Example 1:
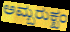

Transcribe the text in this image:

ಅಮ್ಬರುಕ್ಖಂ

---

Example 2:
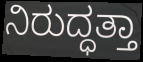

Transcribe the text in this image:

ನಿರುದ್ಧತ್ತಾ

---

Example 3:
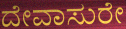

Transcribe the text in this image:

ದೇವಾಸುರೇ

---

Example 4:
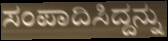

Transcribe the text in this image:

ಸಂಪಾದಿಸಿದ್ದನ್ನು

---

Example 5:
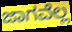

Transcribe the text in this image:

ಜಾಗವೆಲ್ಲ